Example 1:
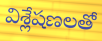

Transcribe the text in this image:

విశ్లేషణలతో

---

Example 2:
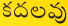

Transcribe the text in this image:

కదలవు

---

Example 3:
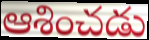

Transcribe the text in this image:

ఆశించడు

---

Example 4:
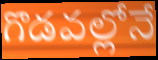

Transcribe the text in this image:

గొడవల్లోనే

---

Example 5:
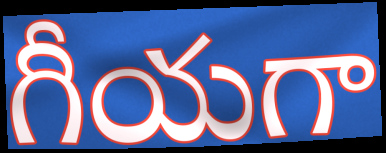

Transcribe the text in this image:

గీయగా